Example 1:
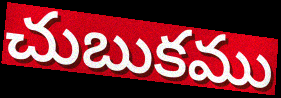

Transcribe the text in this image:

చుబుకము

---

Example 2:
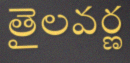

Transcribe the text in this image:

తైలవర్ణ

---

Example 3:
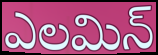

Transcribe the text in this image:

ఎలమిన్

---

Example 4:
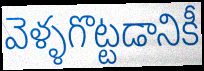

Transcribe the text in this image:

వెళ్ళగొట్టడానికీ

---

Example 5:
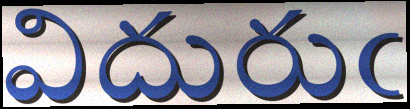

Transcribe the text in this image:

విదురుఁ